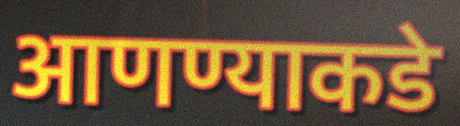
आणण्याकडे